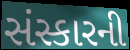
સંસ્કારની